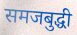
समजबुद्धी